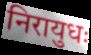
निरायुधः